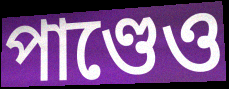
পাণ্ডেও